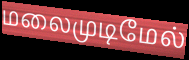
மலைமுடிமேல்